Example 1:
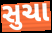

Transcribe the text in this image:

સુચા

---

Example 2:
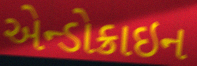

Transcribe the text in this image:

એન્ડોક્રાઇન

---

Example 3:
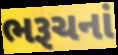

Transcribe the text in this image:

ભરૂચનાં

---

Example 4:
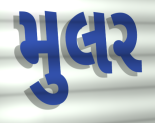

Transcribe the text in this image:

મુલર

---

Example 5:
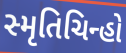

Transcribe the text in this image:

સ્મૃતિચિન્હો